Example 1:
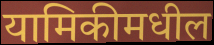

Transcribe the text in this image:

यामिकीमधील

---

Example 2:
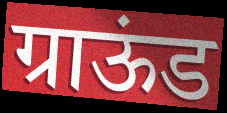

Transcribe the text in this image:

ग्राऊंड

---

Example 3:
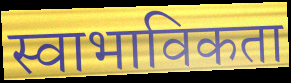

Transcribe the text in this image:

स्वाभाविकता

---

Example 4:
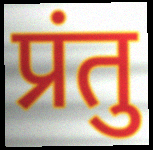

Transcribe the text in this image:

प्रंतु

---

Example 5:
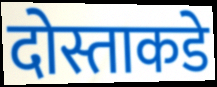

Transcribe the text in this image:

दोस्ताकडे